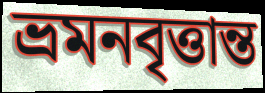
ভ্রমনবৃত্তান্ত